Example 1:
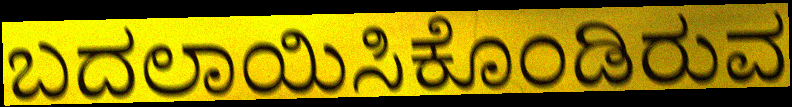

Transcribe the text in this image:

ಬದಲಾಯಿಸಿಕೊಂಡಿರುವ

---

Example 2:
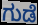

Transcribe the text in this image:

ಗುಡೆ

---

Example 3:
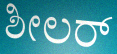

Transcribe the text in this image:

ಶೀಲರ್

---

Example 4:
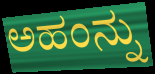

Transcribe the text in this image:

ಅಹಂನ್ನು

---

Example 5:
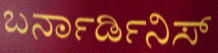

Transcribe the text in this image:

ಬರ್ನಾರ್ಡಿನಿಸ್